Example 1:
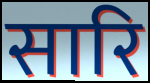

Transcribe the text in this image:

सारि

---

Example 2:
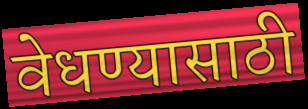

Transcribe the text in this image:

वेधण्यासाठी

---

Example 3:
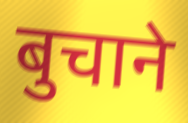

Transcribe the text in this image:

बुचाने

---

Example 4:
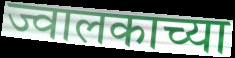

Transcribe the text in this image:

ज्वालकाच्या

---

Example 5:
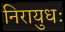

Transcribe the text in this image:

निरायुधः